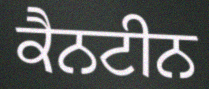
ਕੈਨਟੀਨ